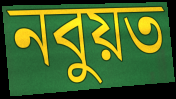
নবুয়ত